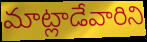
మాట్లాడేవారిని